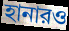
হানারও